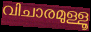
വിചാരമുള്ളൂ